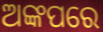
ଅଙ୍କପରେ